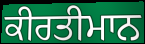
ਕੀਰਤੀਮਾਨ